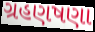
ગ્રહણષણા